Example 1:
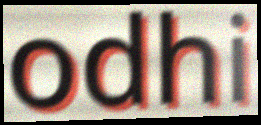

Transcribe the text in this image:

odhi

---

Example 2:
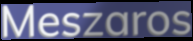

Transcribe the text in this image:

Meszaros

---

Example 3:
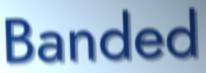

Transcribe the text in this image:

Banded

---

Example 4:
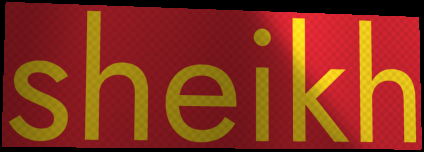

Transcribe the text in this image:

sheikh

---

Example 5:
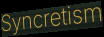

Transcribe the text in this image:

Syncretism